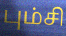
பும்சி